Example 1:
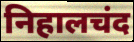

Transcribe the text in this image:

निहालचंद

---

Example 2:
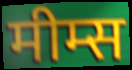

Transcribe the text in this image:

मीम्‍स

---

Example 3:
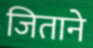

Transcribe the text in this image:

जिताने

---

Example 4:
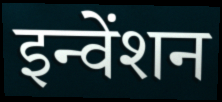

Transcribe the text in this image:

इन्वेंशन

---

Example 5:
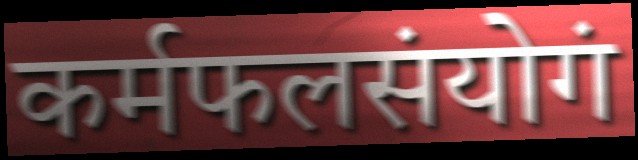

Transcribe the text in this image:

कर्मफलसंयोगं